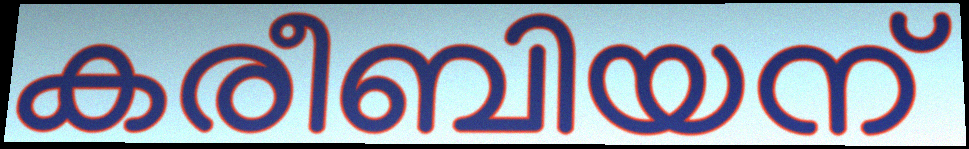
കരീബിയന്